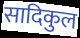
सादिकुल